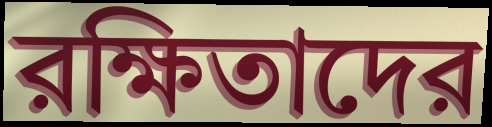
রক্ষিতাদের